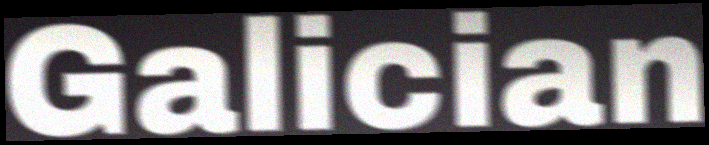
Galician